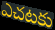
ఎచటకు